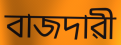
বাজদাৱী